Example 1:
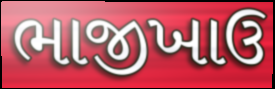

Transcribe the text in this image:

ભાજીખાઉ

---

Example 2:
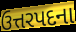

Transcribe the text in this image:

ઉત્તરપદના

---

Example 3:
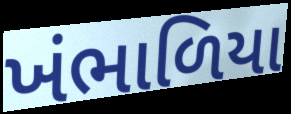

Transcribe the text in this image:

ખંભાળિયા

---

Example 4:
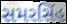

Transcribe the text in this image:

સમરસિંહ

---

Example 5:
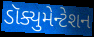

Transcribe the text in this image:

ડૉક્યુમેન્ટેશન